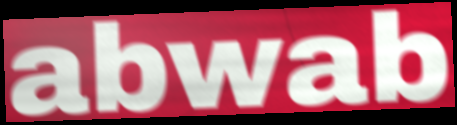
abwab